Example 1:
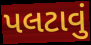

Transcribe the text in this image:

પલટાવું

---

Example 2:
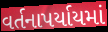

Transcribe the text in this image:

વર્તનાપર્યાયમાં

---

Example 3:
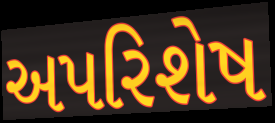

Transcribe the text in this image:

અપરિશેષ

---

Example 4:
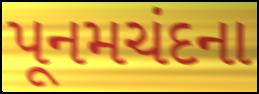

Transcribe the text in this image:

પૂનમચંદના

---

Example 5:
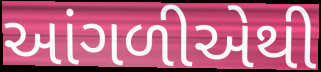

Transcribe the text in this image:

આંગળીએથી